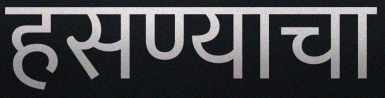
हसण्याचा